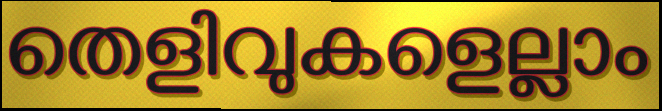
തെളിവുകളെല്ലാം